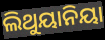
ଲିଥୁୟାନିୟା